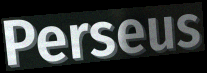
Perseus